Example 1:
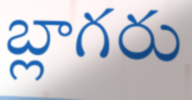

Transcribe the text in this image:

బ్లాగరు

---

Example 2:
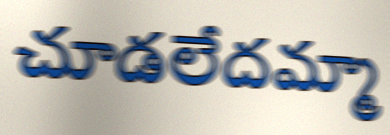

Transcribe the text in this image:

చూడలేదమ్మా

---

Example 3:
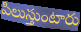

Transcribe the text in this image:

పిలుస్తుంటారు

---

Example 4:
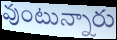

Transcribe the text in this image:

వుంటున్నారు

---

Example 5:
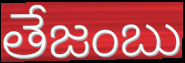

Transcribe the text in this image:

తేజంబు